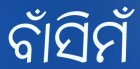
ବାଁସିମଁ